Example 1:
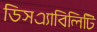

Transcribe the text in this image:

ডিসএ্যাবিলিটি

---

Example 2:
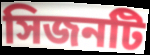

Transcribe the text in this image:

সিজনটি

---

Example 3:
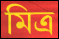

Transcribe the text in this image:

মিত্র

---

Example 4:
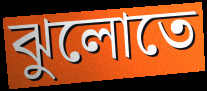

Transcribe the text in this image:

ঝুলোতে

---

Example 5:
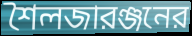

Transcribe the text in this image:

শৈলজারঞ্জনের